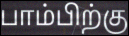
பாம்பிற்கு